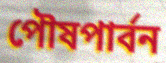
পৌষপার্বন